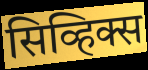
सिव्हिक्स